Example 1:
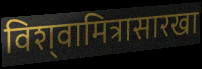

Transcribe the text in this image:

विश्वामित्रासारखा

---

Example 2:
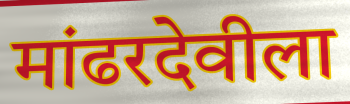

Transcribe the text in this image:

मांढरदेवीला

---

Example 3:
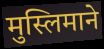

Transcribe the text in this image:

मुस्लिमाने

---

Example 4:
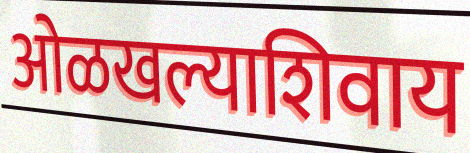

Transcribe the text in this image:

ओळखल्याशिवाय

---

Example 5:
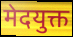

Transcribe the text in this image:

मेदयुक्त